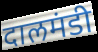
दालमंडी